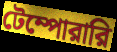
টেম্পোরারি